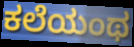
ಕಲೆಯಂಥ